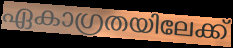
ഏകാഗ്രതയിലേക്ക്